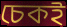
চেকই